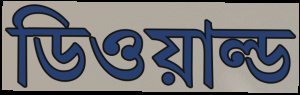
ডিওয়াল্ড